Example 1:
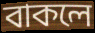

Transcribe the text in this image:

বাকলে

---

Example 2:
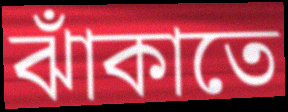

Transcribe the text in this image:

ঝাঁকাতে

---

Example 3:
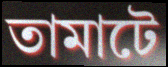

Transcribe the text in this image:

তামাটে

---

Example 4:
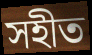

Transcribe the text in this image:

সহীত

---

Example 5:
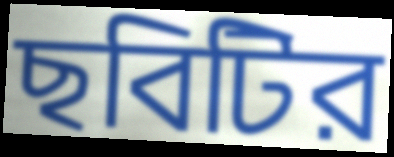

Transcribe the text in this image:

ছবিটির